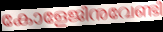
കോളേജിനുവേണ്ടി